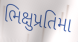
ભિક્ષુપ્રતિમા